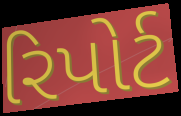
રિપોર્ટ